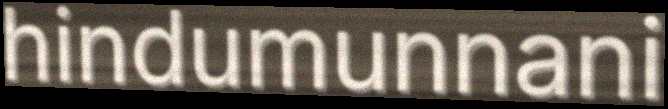
hindumunnani